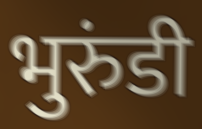
भुरुंडी